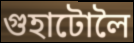
গুহাটোলৈ